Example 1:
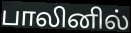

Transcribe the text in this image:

பாலினில்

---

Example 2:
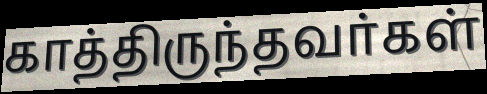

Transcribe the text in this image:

காத்திருந்தவர்கள்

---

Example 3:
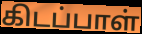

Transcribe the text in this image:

கிடப்பாள்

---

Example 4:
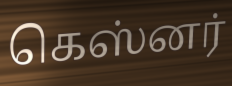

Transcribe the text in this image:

கெஸ்னர்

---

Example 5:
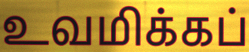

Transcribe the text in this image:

உவமிக்கப்